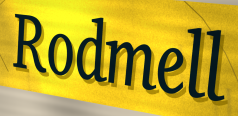
Rodmell